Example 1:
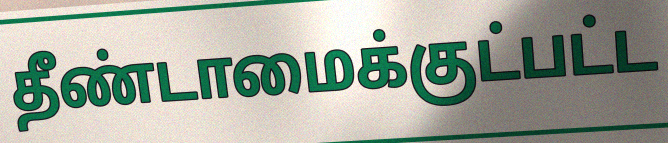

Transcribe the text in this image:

தீண்டாமைக்குட்பட்ட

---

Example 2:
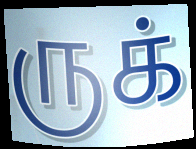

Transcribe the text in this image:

ருக்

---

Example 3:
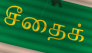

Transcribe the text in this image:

சீதைக்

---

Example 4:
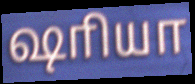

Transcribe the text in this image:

ஷரியா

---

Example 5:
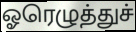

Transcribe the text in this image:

ஓரெழுத்துச்